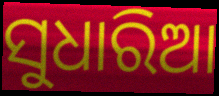
ସୁଧାରିଆ